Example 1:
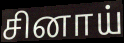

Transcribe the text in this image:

சினாய்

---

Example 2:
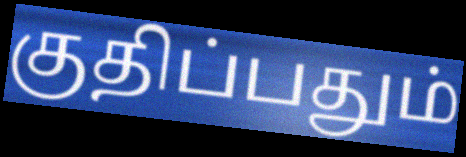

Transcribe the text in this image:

குதிப்பதும்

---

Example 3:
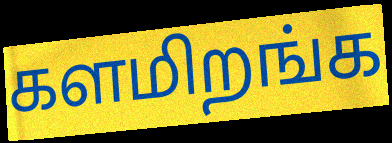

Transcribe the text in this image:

களமிறங்க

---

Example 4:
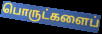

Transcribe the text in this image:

பொருட்களைப்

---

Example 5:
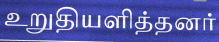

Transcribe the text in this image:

உறுதியளித்தனர்